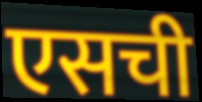
एसची